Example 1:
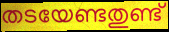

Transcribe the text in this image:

തടയേണ്ടതുണ്ട്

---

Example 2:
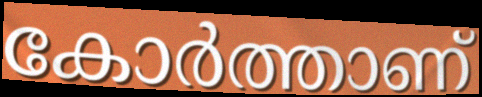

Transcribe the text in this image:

കോർത്താണ്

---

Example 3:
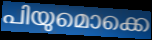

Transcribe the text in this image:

പിയുമൊക്കെ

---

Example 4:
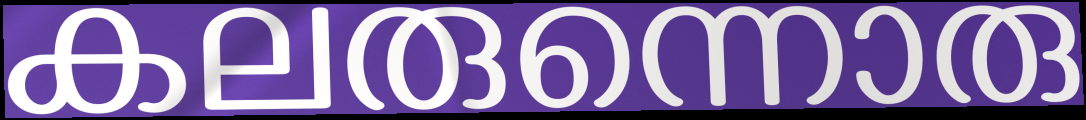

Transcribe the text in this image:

കലരുന്നൊരു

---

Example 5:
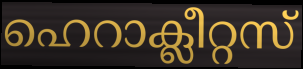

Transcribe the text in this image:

ഹെറാക്ലീറ്റസ്